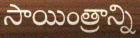
సాయింత్రాన్ని